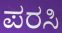
ಪರಸಿ